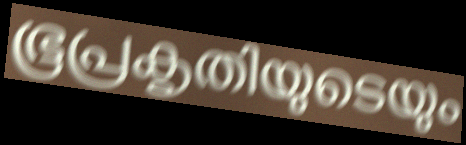
ഭൂപ്രകൃതിയുടെയും